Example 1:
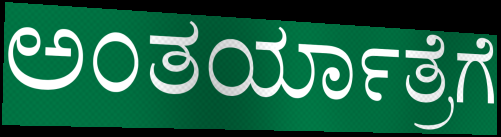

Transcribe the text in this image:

ಅಂತರ್ಯಾತ್ರೆಗೆ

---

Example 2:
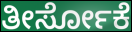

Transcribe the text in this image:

ತೀರ್ಸೋಕೆ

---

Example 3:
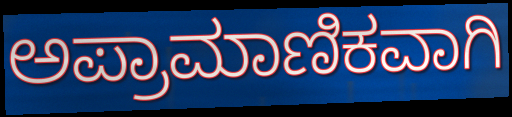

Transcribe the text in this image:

ಅಪ್ರಾಮಾಣಿಕವಾಗಿ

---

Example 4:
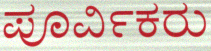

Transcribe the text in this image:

ಪೂರ್ವಿಕರು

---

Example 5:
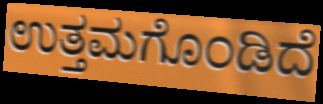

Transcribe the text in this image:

ಉತ್ತಮಗೊಂಡಿದೆ